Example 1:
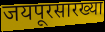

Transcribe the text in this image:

जयपूरसारख्या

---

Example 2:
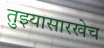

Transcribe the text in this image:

तुझ्यासारखेच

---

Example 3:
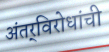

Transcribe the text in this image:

अंतर्विरोधांची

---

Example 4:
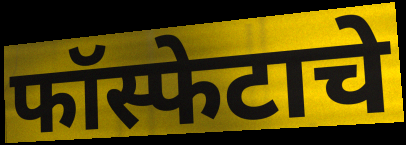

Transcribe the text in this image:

फॉस्फेटाचे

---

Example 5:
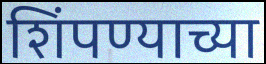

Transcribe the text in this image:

शिंपण्याच्या